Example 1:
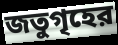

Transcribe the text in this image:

জতুগৃহের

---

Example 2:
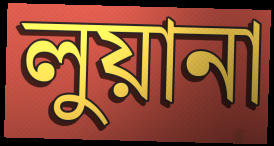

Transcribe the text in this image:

লুয়ানা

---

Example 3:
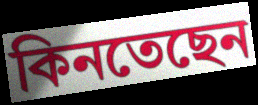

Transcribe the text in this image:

কিনতেছেন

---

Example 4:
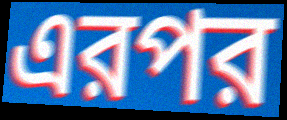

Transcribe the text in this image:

এরপর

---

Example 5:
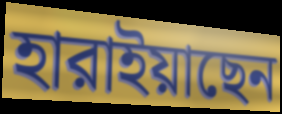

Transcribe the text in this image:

হারাইয়াছেন